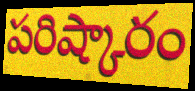
పరిష్కారం